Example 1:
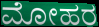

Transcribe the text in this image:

ಮೋಹರ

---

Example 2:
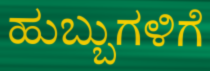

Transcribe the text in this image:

ಹುಬ್ಬುಗಳಿಗೆ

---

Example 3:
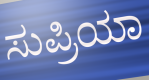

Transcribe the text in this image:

ಸುಪ್ರಿಯಾ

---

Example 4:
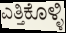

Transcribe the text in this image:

ಎತ್ತಿಕೊಳ್ಳಿ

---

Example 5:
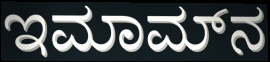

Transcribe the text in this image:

ಇಮಾಮ್‍ನ